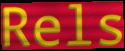
Rels